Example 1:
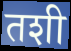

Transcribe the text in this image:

तशी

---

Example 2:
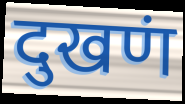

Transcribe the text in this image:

दुखणं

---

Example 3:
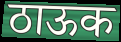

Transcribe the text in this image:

ठाऊक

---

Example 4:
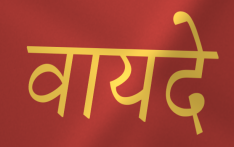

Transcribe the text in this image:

वायदे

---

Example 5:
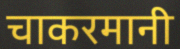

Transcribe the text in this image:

चाकरमानी